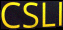
CSLI